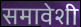
समावेशी